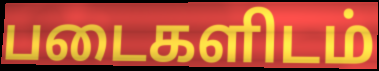
படைகளிடம்